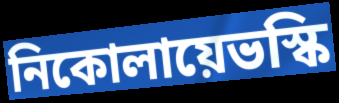
নিকোলায়েভস্কি